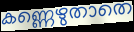
കണ്ണെഴുതാതെ